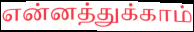
என்னத்துக்காம்